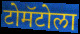
टोमॅटोला